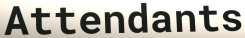
Attendants